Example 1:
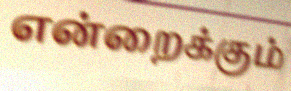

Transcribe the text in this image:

என்றைக்கும்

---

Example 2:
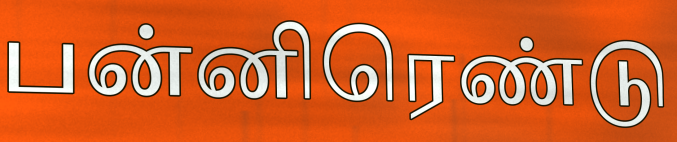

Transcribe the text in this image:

பன்னிரெண்டு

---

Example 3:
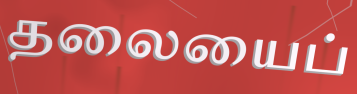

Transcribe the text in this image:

தலையைப்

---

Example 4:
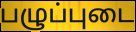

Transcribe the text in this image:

பழுப்புடை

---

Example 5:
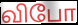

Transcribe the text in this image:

விபோ